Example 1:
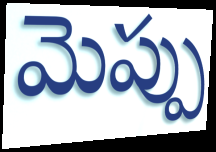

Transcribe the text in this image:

మెప్పు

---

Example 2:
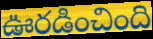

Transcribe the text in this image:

ఊరడించింది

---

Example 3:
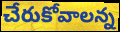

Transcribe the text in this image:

చేరుకోవాలన్న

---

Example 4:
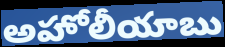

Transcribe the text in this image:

అహోలీయాబు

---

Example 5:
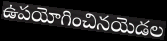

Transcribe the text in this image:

ఉపయోగించినయెడల